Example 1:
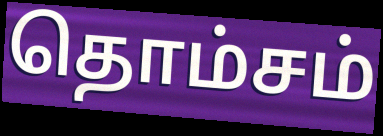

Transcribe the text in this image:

தொம்சம்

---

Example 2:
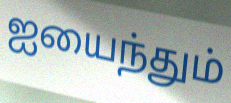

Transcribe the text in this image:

ஐயைந்தும்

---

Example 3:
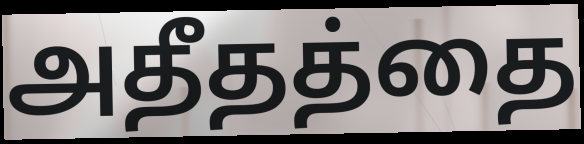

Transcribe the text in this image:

அதீதத்தை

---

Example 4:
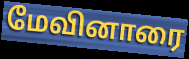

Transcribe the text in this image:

மேவினாரை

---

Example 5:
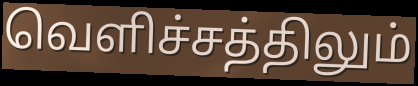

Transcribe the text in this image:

வெளிச்சத்திலும்